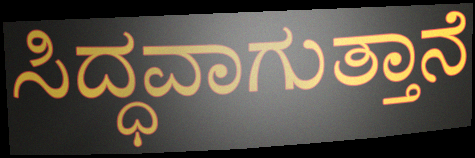
ಸಿದ್ಧವಾಗುತ್ತಾನೆ